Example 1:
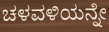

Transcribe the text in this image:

ಚಳವಳಿಯನ್ನೇ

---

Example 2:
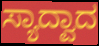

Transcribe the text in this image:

ಸ್ಯಾದ್ವಾದ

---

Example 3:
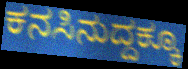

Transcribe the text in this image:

ಕನಸಿನುದ್ದಕ್ಕೂ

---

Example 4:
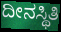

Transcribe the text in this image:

ದೀನಸ್ಥಿತಿ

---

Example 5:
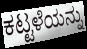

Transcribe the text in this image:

ಕಟ್ಟಳೆಯನ್ನು